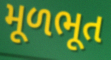
મૂળભૂત